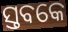
ସ୍ତବକେ